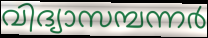
വിദ്യാസമ്പന്നർ